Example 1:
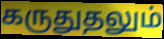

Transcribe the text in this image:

கருதுதலும்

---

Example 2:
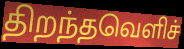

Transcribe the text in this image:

திறந்தவெளிச்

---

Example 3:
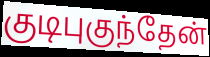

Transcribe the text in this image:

குடிபுகுந்தேன்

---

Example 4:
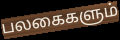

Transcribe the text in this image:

பலகைகளும்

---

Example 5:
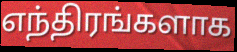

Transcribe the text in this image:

எந்திரங்களாக